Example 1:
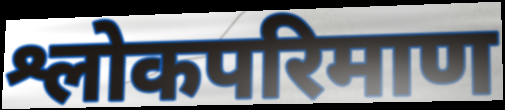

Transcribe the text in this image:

श्लोकपरिमाण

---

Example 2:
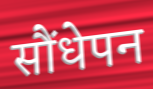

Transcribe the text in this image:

सौंधेपन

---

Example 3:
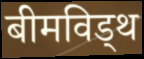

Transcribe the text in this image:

बीमविड्थ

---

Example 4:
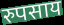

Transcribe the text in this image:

रुपसाय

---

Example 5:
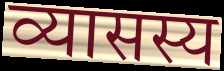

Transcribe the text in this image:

व्यासस्य